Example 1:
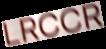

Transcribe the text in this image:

LRCCR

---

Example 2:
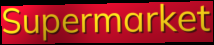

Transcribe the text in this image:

Supermarket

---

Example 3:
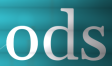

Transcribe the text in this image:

ods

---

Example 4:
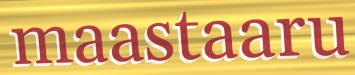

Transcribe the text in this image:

maastaaru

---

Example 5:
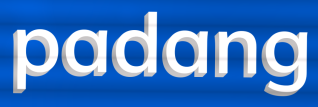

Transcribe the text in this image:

padang